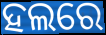
ହଲରେ